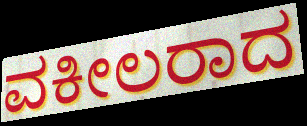
ವಕೀಲರಾದ